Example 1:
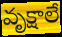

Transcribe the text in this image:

వృక్షాలే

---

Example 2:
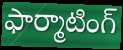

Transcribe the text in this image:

ఫార్మాటింగ్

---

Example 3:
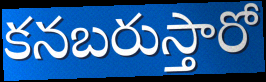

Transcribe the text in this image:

కనబరుస్తారో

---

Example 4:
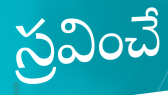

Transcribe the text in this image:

స్రవించే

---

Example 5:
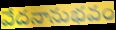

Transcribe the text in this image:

వేదనానుభవం